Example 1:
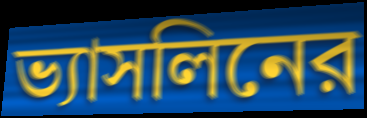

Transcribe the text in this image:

ভ্যাসলিনের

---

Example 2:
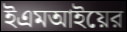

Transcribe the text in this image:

ইএমআইয়ের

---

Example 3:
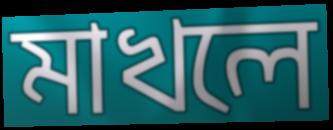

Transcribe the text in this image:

মাখলে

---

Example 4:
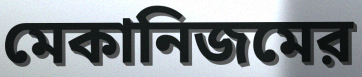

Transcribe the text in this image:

মেকানিজমের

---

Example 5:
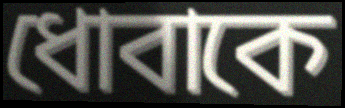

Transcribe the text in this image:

ধোবাকে